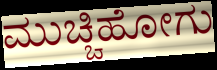
ಮುಚ್ಚಿಹೋಗು